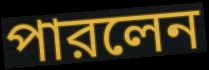
পারলেন